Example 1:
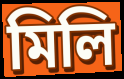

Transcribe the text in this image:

মিলি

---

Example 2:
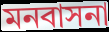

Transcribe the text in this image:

মনবাসনা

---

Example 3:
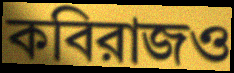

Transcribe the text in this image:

কবিরাজও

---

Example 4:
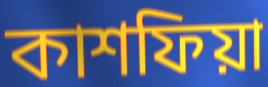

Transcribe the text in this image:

কাশফিয়া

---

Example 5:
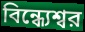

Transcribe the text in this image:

বিন্ধ্যেশ্বর